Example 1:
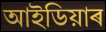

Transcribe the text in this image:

আইডিয়াৰ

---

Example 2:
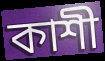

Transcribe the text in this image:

কাশী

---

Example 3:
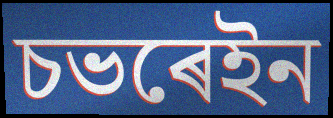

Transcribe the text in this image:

চভৰেইন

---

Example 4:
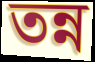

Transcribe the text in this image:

তন্ন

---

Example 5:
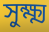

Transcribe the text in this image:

সুক্ষ্ম